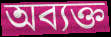
অব্যক্ত